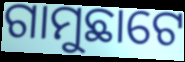
ଗାମୁଛାଟେ